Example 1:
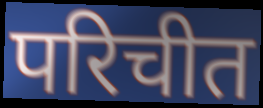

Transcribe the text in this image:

परिचीत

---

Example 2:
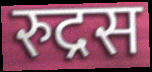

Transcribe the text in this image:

रुद्रस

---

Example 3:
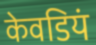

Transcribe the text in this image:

केवडियं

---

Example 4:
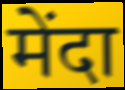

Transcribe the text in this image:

मेंदा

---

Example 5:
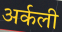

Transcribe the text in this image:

अर्कली